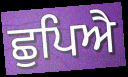
ਛੁਪਿਐ